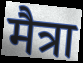
मैत्रा